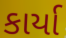
કાર્યા